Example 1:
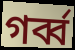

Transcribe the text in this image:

গর্ব্ব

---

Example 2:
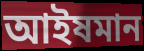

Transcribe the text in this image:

আইষমান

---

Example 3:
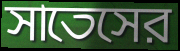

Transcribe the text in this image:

সাতেসের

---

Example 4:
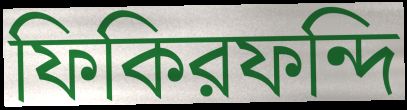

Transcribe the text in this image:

ফিকিরফন্দি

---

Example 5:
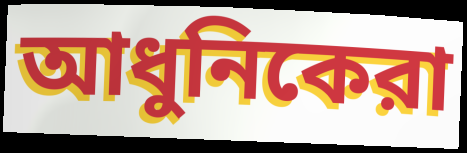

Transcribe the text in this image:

আধুনিকেরা